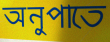
অনুপাতে